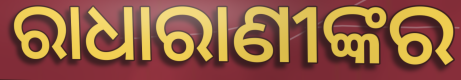
ରାଧାରାଣୀଙ୍କର